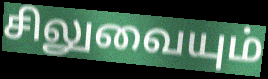
சிலுவையும்